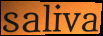
saliva